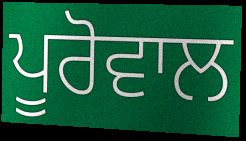
ਪੂਰੋਵਾਲ